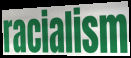
racialism